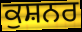
ਕੁਸ਼ਨਰ